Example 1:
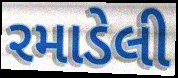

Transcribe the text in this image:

રમાડેલી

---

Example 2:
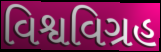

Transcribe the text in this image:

વિશ્વવિગ્રહ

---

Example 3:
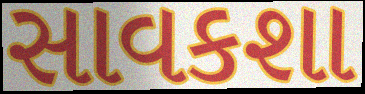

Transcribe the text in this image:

સાવકશા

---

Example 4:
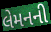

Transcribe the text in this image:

લેમનની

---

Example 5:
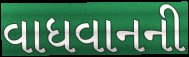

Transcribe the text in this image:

વાધવાનની